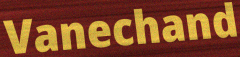
Vanechand